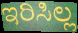
ಇರಿಸಿಲ್ಲ